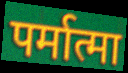
पर्मात्मा